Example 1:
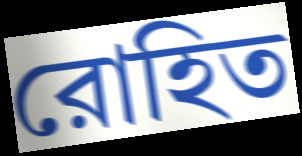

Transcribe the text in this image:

রোহিত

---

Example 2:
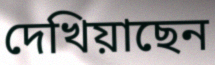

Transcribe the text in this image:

দেখিয়াছেন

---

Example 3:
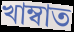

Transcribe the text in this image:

খাম্বাত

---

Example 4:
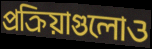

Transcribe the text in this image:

প্রক্রিয়াগুলোও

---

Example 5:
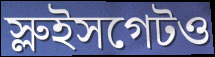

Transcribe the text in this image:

স্লুইসগেটও